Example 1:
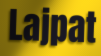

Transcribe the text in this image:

Lajpat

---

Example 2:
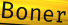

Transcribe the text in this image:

Boner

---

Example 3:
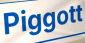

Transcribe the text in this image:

Piggott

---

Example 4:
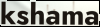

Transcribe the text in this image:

kshama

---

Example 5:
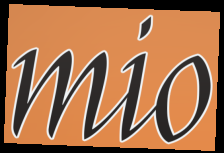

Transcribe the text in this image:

mio